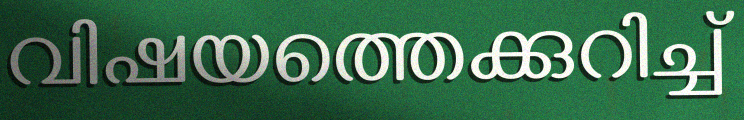
വിഷയത്തെക്കുറിച്ച്